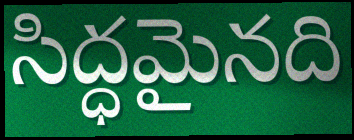
సిద్ధమైనది